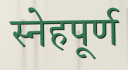
स्नेहपूर्ण